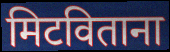
मिटविताना